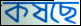
কষছে